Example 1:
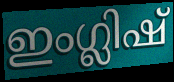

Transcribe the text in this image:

ഇംഗ്ലിഷ്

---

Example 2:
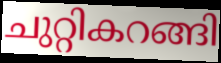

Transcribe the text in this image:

ചുറ്റികറങ്ങി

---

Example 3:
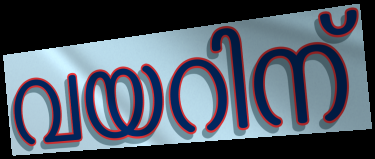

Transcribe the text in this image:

വയറിന്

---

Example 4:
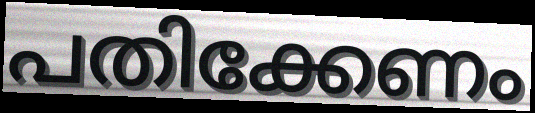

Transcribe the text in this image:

പതിക്കേണം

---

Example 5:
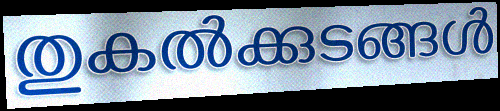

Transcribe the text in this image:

തുകൽക്കുടങ്ങൾ